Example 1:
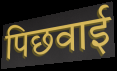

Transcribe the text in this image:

पिछवाई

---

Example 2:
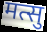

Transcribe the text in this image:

मत्सु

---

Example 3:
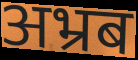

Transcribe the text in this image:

अभ्रब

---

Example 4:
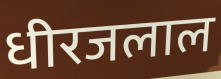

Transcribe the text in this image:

धीरजलाल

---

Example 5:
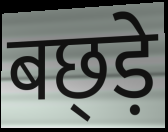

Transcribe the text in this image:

बछ्ड़े